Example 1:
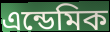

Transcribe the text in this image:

এন্ডেমিক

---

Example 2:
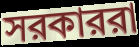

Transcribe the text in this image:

সরকাররা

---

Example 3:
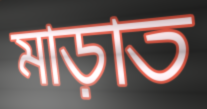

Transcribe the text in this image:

মাড়াত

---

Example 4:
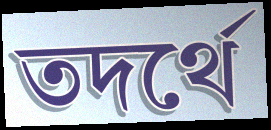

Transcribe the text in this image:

তদর্থে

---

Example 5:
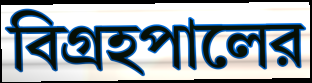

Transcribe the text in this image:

বিগ্রহপালের